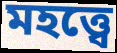
মহত্ত্বে